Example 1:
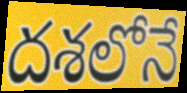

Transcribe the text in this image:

దశలోనే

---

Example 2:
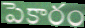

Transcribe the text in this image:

పెకారం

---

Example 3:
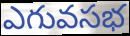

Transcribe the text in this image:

ఎగువసభ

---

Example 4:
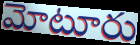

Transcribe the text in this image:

మోటూరు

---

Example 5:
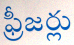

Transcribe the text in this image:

ఫ్రీజర్లు